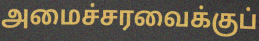
அமைச்சரவைக்குப்